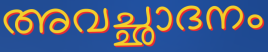
അവച്ഛാദനം